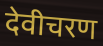
देवीचरण